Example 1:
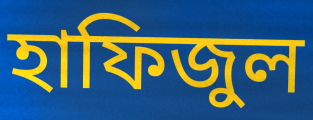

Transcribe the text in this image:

হাফিজুল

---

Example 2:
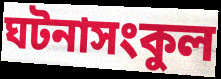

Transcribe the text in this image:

ঘটনাসংকুল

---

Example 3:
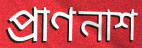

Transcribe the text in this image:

প্রাণনাশ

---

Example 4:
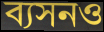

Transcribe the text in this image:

ব্যসনও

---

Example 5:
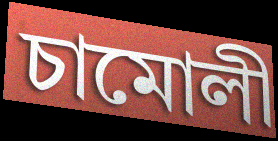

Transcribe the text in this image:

চামোলী